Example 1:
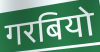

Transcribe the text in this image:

गरबियो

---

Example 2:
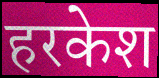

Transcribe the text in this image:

हरकेश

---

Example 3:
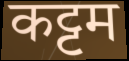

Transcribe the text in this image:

कट्टम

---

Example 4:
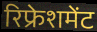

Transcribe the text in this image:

रिफ्रेशमेंट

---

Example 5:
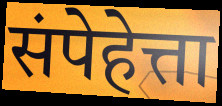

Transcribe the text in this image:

संपेहेत्ता